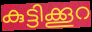
കുട്ടിക്കൂറ